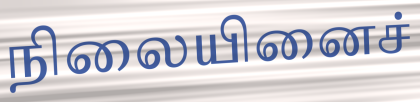
நிலையினைச்